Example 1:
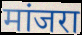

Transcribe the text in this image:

मांजरा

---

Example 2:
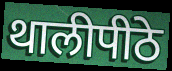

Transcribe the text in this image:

थालीपीठे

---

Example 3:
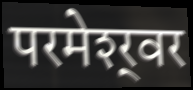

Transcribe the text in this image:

परमेश्र्वर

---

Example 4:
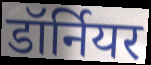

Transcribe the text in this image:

डॉर्नियर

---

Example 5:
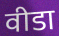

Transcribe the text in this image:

वीडा